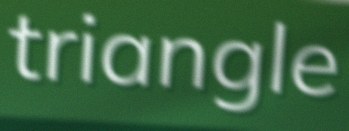
triangle